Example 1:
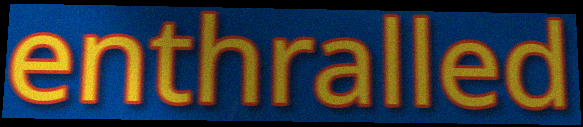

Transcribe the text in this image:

enthralled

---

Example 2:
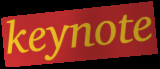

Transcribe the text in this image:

keynote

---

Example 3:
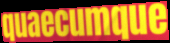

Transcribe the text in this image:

quaecumque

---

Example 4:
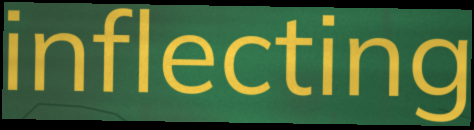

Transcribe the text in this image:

inflecting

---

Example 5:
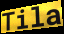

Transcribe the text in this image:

Tila